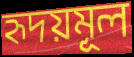
হৃদয়মূল